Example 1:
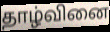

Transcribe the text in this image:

தாழ்வினை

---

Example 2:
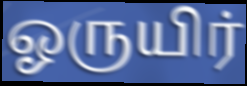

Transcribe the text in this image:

ஓருயிர்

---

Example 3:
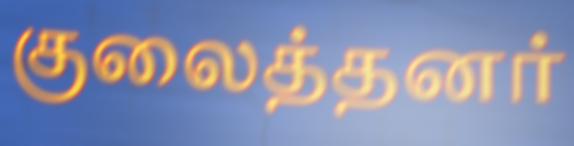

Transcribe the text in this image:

குலைத்தனர்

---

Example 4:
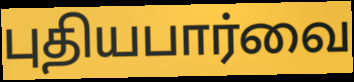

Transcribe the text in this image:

புதியபார்வை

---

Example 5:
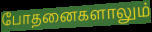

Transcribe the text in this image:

போதனைகளாலும்